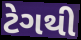
ટેગથી